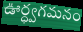
ఊర్ధ్వగమనం